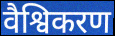
वैश्विकरण